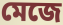
মেজে